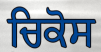
ਚਿਕੋਸ